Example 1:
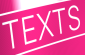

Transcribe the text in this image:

TEXTS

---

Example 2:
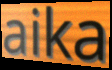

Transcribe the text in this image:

aika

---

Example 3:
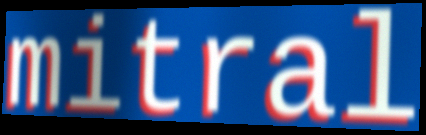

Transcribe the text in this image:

mitral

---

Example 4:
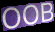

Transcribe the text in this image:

OOB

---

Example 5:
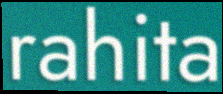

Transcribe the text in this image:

rahita